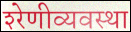
श्रेणीव्यवस्था